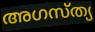
അഗസ്ത്യ